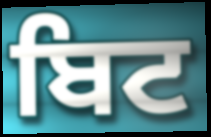
ਬਿਟ